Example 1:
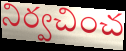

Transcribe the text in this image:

నిర్వచించ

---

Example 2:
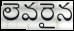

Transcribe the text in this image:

లెవరైన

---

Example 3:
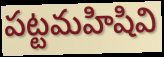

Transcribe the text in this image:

పట్టమహిషివి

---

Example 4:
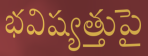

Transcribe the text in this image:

భవిష్యత్తుపై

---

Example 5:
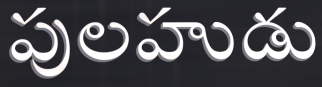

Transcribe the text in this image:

పులహుడు